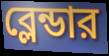
ব্লেন্ডার